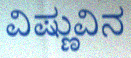
ವಿಷ್ಣುವಿನ